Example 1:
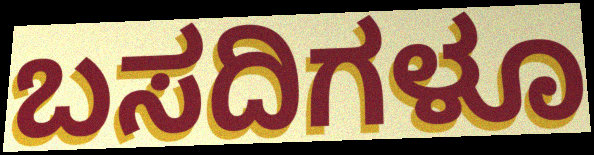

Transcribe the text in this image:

ಬಸದಿಗಳೂ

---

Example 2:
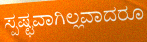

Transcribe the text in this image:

ಸ್ಪಷ್ಟವಾಗಿಲ್ಲವಾದರೂ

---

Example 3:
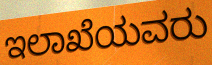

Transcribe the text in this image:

ಇಲಾಖೆಯವರು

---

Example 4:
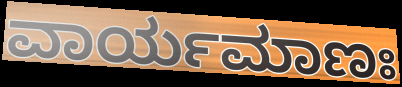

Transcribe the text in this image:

ವಾರ್ಯಮಾಣಃ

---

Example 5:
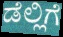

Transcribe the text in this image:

ಡೆಲ್ಲಿಗೆ